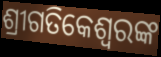
ଶ୍ରୀଗତିକେଶ୍ବରଙ୍କ